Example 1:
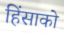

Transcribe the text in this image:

हिंसाको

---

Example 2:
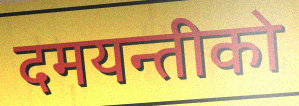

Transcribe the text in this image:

दमयन्तीको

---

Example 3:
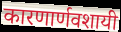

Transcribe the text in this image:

कारणार्णवशायी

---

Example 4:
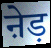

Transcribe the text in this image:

ऩेड़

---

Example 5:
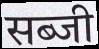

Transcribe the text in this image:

सब्जी